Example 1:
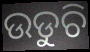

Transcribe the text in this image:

ଉଡୁଚି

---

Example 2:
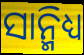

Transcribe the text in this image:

ସାନ୍ମିଧ୍ୟ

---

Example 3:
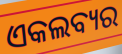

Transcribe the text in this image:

ଏକଲବ୍ୟର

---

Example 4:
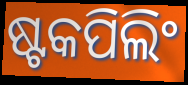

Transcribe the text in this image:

ଷ୍ଟକପିଲିଂ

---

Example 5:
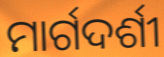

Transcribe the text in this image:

ମାର୍ଗଦର୍ଶୀ